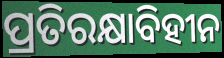
ପ୍ରତିରକ୍ଷାବିହୀନ